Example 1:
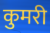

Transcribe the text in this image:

कुमरी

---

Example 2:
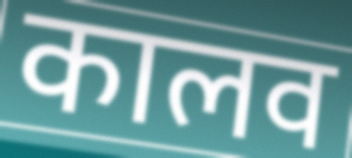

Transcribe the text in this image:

कालव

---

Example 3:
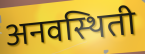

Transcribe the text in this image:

अनवस्थिती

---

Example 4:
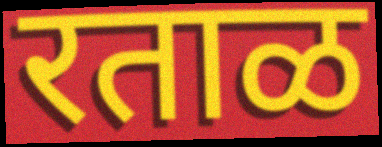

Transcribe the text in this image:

रताळ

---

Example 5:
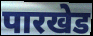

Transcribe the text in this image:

पारखेड